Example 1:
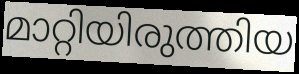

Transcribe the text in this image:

മാറ്റിയിരുത്തിയ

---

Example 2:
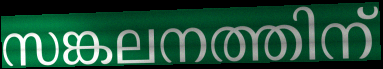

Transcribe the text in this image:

സങ്കലനത്തിന്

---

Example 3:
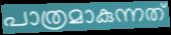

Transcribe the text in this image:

പാത്രമാകുന്നത്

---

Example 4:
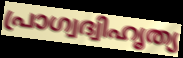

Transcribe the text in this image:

പ്രാഗ്വദ്വിഹൃത്യ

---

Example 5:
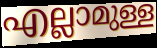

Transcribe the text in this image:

എല്ലാമുള്ള